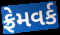
ફ્રેમવર્ક